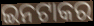
ଇନଟାକର